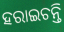
ହରାଇଚନ୍ତି